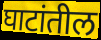
घाटांतील